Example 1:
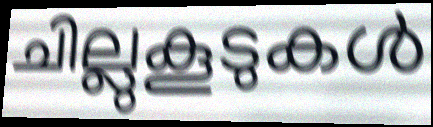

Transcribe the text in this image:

ചില്ലുകൂടുകൾ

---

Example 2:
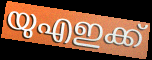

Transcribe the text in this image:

യുഎഇക്ക്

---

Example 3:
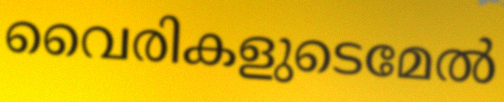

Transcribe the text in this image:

വൈരികളുടെമേൽ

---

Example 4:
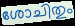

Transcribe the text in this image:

ശോചിതും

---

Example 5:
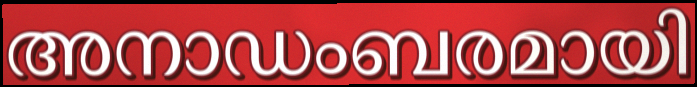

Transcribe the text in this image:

അനാഡംബരമായി